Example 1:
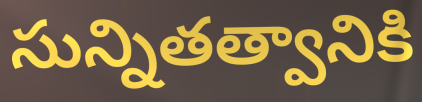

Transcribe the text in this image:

సున్నితత్వానికి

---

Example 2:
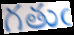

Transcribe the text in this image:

గతుఁ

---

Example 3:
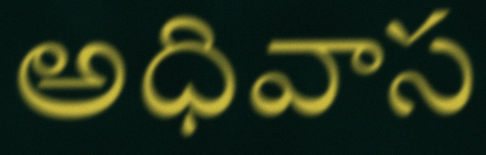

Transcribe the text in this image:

అధివాస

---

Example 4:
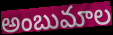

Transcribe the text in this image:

అంబుమాల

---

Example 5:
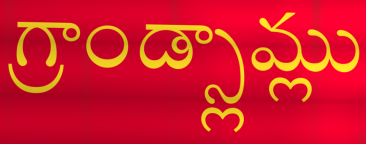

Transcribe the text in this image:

గ్రాండ్స్లామ్లు